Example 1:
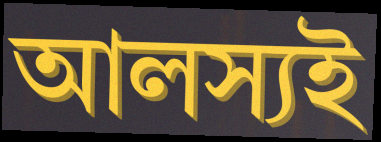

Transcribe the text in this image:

আলস্যই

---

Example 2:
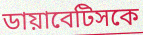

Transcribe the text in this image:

ডায়াবেটিসকে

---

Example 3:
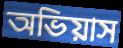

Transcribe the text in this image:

অভিয়াস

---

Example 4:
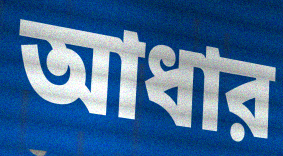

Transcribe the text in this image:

আধার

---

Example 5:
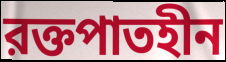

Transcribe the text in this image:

রক্তপাতহীন